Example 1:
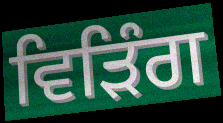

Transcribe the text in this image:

ਵਿੜਿੰਗ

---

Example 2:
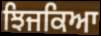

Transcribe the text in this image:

ਝਿਜਕਿਆ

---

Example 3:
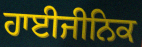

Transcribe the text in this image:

ਹਾਈਜੀਨਿਕ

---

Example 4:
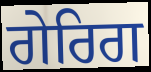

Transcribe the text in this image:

ਗੇਰਿਗ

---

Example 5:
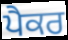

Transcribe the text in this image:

ਪੈਕਰ